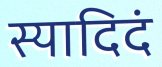
स्यादिदं